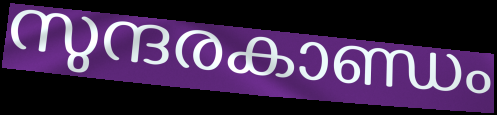
സുന്ദരകാണ്ഡം